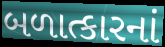
બળાત્કારનાં